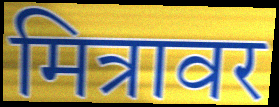
मित्रावर